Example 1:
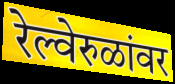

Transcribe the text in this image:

रेल्वेरुळांवर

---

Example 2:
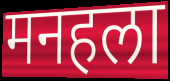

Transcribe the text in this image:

मनहला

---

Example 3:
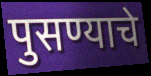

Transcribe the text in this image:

पुसण्याचे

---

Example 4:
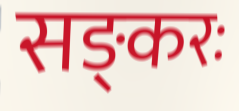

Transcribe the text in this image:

सङ्करः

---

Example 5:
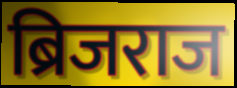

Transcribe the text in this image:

ब्रिजराज